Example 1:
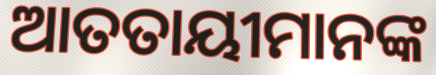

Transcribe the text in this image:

ଆତତାୟୀମାନଙ୍କ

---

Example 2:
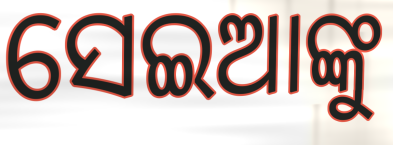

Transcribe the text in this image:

ସେଇଆଙ୍କୁ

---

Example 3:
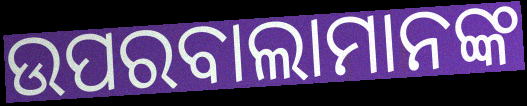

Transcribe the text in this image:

ଉପରବାଲାମାନଙ୍କ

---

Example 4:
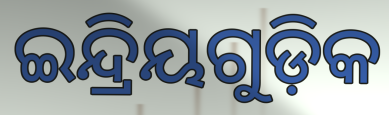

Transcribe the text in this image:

ଇନ୍ଦ୍ରିୟଗୁଡ଼ିକ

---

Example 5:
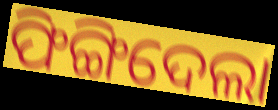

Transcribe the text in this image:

ଫିଙ୍ଗିଦେଲା